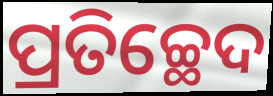
ପ୍ରତିଚ୍ଛେଦ